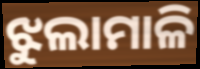
ଝୁଲାମାଳି